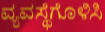
ವ್ಯವಸ್ಥೆಗೊಳಿಸಿ